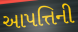
આપત્તિની